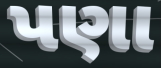
પણા